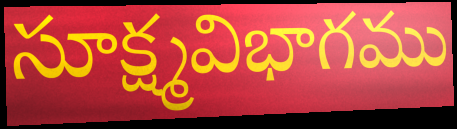
సూక్ష్మవిభాగము